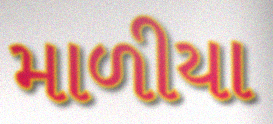
માળીયા